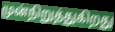
முன்நிறுத்துகிறது